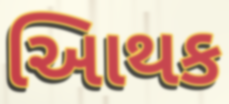
આિથક